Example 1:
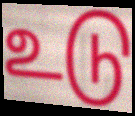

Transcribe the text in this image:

உடு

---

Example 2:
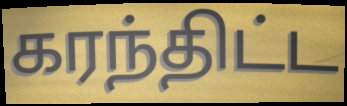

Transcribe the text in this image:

கரந்திட்ட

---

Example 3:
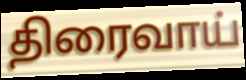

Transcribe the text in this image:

திரைவாய்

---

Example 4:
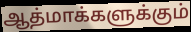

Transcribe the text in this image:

ஆத்மாக்களுக்கும்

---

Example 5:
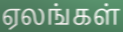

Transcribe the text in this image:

ஏலங்கள்